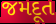
જમદૂત